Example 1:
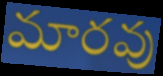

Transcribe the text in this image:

మారవు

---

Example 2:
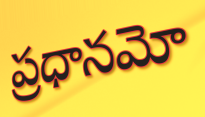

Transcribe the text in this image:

ప్రధానమో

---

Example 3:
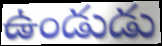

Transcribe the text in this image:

ఉండుడు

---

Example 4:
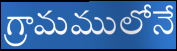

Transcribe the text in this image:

గ్రామములోనే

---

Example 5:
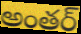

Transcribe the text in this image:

అంతర్